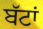
ਬੱਟਾਂ